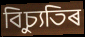
বিচ্যুতিৰ